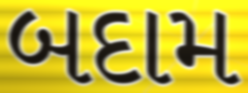
બદામ